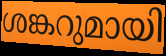
ശങ്കറുമായി